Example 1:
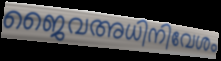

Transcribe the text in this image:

ജൈവഅധിനിവേശം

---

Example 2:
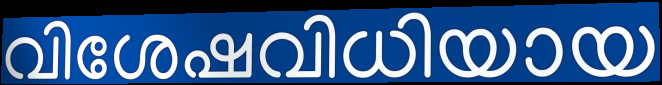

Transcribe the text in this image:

വിശേഷവിധിയായ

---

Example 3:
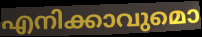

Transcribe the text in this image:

എനിക്കാവുമൊ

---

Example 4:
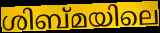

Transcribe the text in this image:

ശിബ്മയിലെ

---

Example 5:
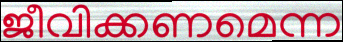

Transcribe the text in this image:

ജീവിക്കണമെന്ന